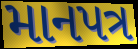
માનપત્ર